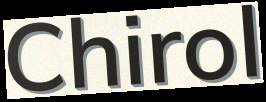
Chirol